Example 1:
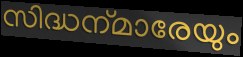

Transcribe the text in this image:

സിദ്ധന്‌മാരേയും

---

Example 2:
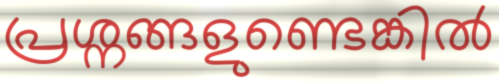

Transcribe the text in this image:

പ്രശ്നങ്ങളുണ്ടെങ്കിൽ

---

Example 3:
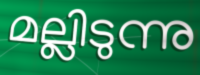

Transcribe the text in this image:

മല്ലിടുന്നു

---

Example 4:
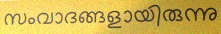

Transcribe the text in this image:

സംവാദങ്ങളായിരുന്നു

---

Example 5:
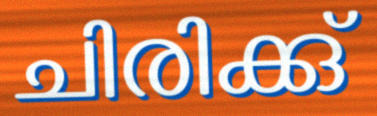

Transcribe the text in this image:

ചിരിക്കു്